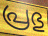
പ്രഭു